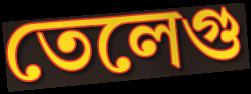
তেলেগু